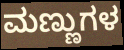
ಮಣ್ಣುಗಳ